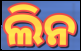
ଲିନ